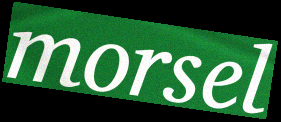
morsel